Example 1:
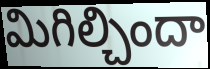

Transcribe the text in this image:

మిగిల్చిందా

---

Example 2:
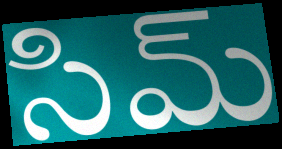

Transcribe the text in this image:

సిమ్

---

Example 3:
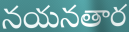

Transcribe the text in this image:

నయనతార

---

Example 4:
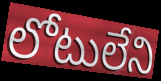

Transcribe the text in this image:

లోటులేని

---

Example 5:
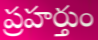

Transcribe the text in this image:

ప్రహర్తుం